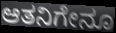
ಆತನಿಗೇನೂ